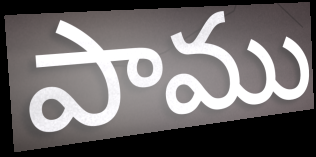
పాము